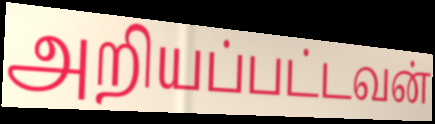
அறியப்பட்டவன்